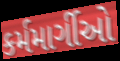
કર્મમાર્ગીઓ